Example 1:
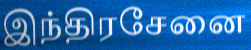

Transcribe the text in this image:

இந்திரசேனை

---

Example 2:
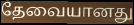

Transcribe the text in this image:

தேவையானது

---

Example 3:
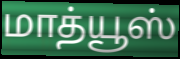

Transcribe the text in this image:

மாத்யூஸ்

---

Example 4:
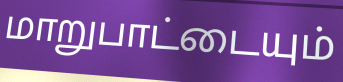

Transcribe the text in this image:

மாறுபாட்டையும்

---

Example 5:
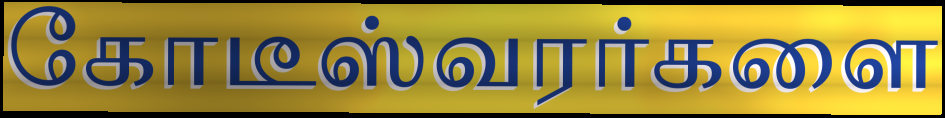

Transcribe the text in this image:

கோடீஸ்வரர்களை